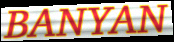
BANYAN